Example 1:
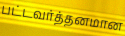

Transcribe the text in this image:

பட்டவர்த்தனமான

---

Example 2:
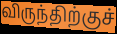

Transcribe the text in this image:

விருந்திற்குச்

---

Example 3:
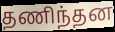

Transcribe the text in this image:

தணிந்தன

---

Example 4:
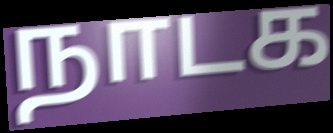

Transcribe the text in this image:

நாடக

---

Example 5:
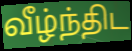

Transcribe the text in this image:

வீழ்ந்திட